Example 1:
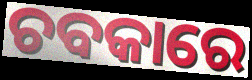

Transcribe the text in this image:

ଚବକାରେ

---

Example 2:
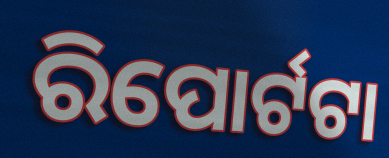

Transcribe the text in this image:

ରିପୋର୍ଟଟା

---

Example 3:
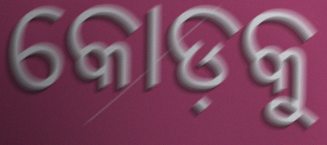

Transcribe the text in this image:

କୋଡ଼କୁ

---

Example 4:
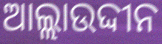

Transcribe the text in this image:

ଆଲ୍ଲାଉଦ୍ଦୀନ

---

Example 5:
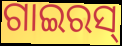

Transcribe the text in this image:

ଗାଇରସ୍